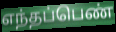
எந்தப்பெண்